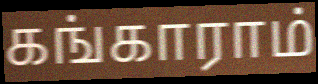
கங்காராம்